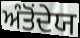
ਅੰਤੋਂਦੇਯ